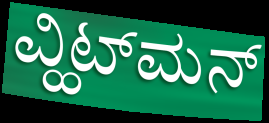
ವ್ಹಿಟ್‌ಮನ್